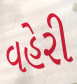
વહેરી